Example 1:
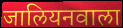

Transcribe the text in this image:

जालियनवाला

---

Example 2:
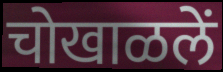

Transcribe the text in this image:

चोखाळलें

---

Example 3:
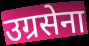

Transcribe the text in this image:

उग्रसेना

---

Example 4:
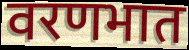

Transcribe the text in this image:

वरणभात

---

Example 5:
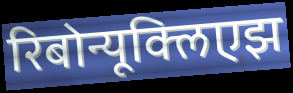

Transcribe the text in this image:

रिबोन्यूक्लिएझ